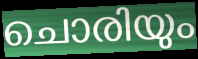
ചൊരിയും